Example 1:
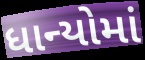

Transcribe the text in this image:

ધાન્યોમાં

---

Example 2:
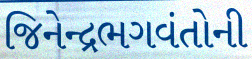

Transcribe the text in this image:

જિનેન્દ્રભગવંતોની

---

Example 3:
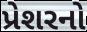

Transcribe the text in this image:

પ્રેશરનો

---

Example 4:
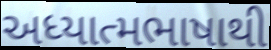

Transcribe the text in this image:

અધ્યાત્મભાષાથી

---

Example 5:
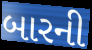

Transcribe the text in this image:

બારની